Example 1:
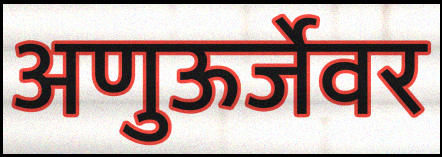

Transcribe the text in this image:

अणुऊर्जेवर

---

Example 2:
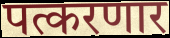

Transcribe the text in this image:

पत्करणार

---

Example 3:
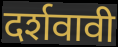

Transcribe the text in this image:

दर्शवावी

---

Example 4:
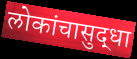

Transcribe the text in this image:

लोकांचासुद्धा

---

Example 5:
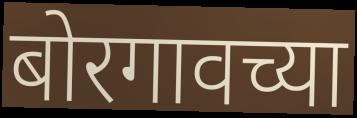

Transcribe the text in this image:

बोरगावच्या